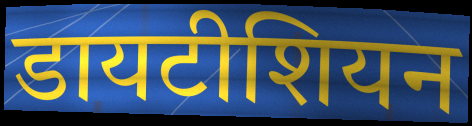
डायटीशियन